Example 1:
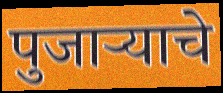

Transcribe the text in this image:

पुजाऱ्याचे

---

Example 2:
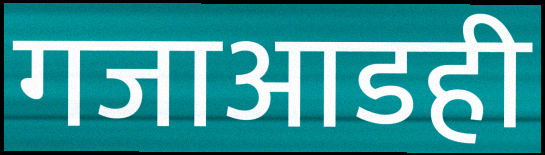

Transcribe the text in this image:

गजाआडही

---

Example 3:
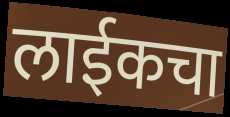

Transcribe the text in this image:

लाईकचा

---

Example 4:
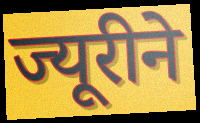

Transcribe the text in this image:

ज्यूरीने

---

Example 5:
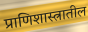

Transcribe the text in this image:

प्राणिशास्त्रातील